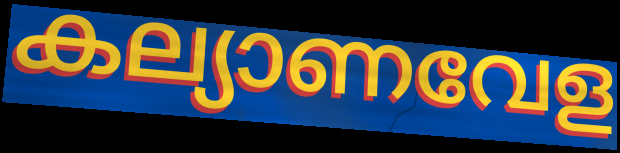
കല്യാണവേള